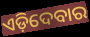
ଏଡ଼ିଦେବାର